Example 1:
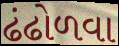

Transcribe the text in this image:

ઢંઢોળવા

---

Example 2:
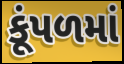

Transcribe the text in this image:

કૂંપળમાં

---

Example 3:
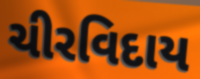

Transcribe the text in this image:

ચીરવિદાય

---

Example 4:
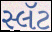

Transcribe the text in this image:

સ્લૅટ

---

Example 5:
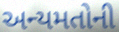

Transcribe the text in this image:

અન્યમતોની